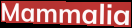
Mammalia